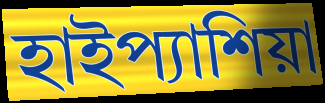
হাইপ্যাশিয়া